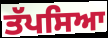
ਤੱਪਸਿਆ